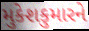
મુકેશકુમારને